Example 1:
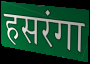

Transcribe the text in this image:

हसरंगा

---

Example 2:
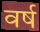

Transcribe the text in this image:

वर्ष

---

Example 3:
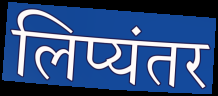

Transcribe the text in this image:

लिप्यंतर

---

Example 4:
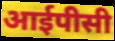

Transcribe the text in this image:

आईपीसी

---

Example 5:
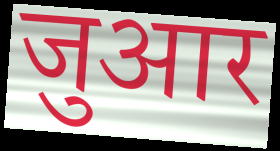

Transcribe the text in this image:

जुआर